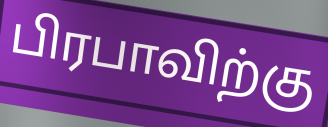
பிரபாவிற்கு